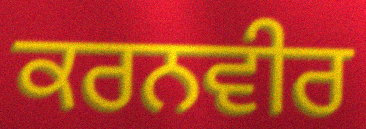
ਕਰਨਵੀਰ